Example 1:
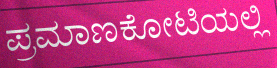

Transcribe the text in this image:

ಪ್ರಮಾಣಕೋಟಿಯಲ್ಲಿ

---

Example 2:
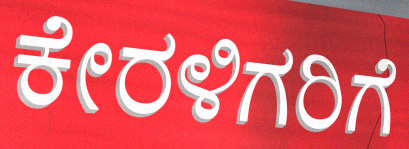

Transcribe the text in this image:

ಕೇರಳಿಗರಿಗೆ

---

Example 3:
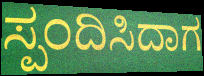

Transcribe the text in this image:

ಸ್ಪಂದಿಸಿದಾಗ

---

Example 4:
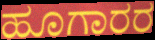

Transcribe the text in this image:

ಹೂಗಾರರ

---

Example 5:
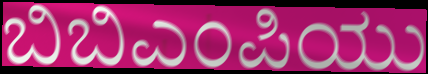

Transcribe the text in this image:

ಬಿಬಿಎಂಪಿಯು